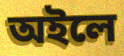
অইলে